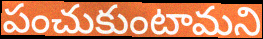
పంచుకుంటామని